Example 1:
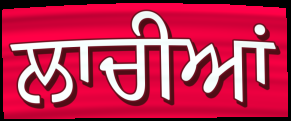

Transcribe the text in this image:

ਲਾਚੀਆਂ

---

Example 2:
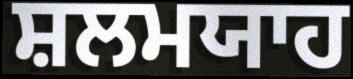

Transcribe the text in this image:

ਸ਼ਲਮਯਾਹ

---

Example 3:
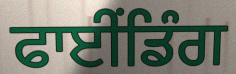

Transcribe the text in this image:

ਫਾਈਂਡਿੰਗ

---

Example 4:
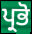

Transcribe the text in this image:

ਪ੍ਰਭੋ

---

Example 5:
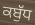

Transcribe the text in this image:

ਕਬੁੱਧ